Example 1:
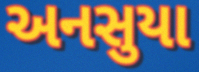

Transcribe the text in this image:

અનસુયા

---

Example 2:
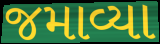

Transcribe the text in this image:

જમાવ્યા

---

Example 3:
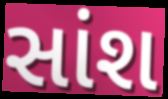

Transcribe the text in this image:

સાંશ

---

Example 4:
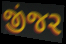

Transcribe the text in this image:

જીંજર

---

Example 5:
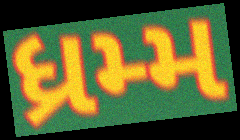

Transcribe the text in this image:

ધ્રમ્મ